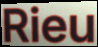
Rieu